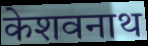
केशवनाथ